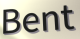
Bent